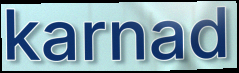
karnad